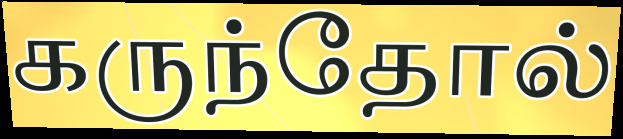
கருந்தோல்